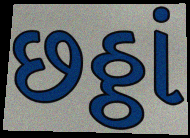
છઠ્ઠાં